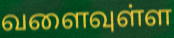
வளைவுள்ள